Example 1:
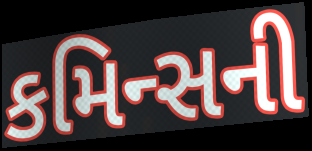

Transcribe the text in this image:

કમિન્સની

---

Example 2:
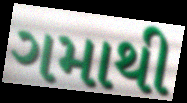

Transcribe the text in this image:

ગમાથી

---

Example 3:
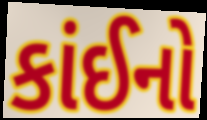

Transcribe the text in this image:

કાંઈનો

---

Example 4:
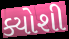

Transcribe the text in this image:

ક્યોશી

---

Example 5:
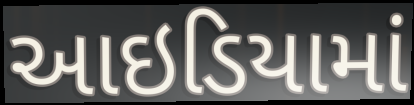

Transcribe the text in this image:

આઇડિયામાં